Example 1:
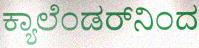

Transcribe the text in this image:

ಕ್ಯಾಲೆಂಡರ್‌ನಿಂದ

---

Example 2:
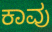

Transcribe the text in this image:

ಕಾವು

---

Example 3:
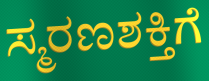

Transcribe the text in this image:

ಸ್ಮರಣಶಕ್ತಿಗೆ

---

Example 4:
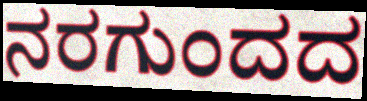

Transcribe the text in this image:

ನರಗುಂದದ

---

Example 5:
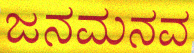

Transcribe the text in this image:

ಜನಮನವ